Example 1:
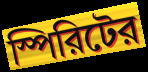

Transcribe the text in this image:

স্পিরিটের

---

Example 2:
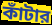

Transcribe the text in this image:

কাঁটার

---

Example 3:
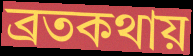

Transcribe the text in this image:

ব্রতকথায়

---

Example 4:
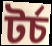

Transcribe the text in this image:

টর্চ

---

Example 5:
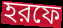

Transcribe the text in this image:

হরফে